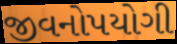
જીવનોપયોગી